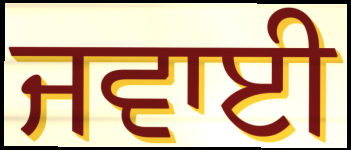
ਜਵਾਈ